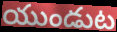
యుండుట